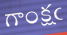
గాంక్షఁ